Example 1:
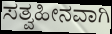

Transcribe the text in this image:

ಸತ್ವಹೀನವಾಗಿ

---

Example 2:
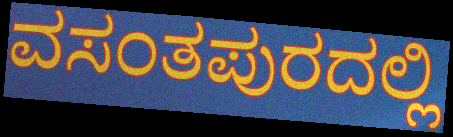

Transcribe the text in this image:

ವಸಂತಪುರದಲ್ಲಿ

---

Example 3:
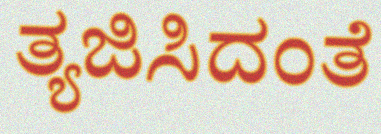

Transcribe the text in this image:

ತ್ಯಜಿಸಿದಂತೆ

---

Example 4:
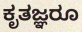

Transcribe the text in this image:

ಕೃತಜ್ಞರೂ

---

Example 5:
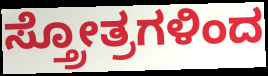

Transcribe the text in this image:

ಸ್ತ್ರೋತ್ರಗಳಿಂದ